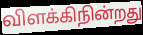
விளக்கிநின்றது